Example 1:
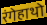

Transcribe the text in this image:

रंगेहाथो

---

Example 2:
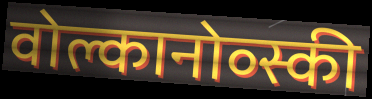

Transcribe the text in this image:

वोल्कानोव्स्की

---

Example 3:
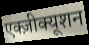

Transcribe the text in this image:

एक्ज़ीक्यूशन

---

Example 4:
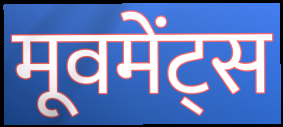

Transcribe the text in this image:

मूवमेंट्स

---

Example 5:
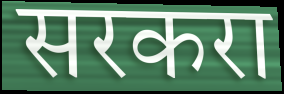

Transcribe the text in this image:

सरकरा